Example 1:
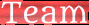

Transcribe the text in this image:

Team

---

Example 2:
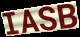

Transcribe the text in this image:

IASB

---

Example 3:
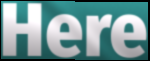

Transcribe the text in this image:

Here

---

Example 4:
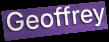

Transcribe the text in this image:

Geoffrey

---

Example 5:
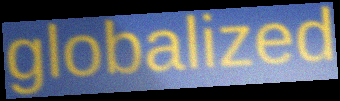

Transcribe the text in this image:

globalized